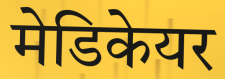
मेडिकेयर